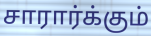
சாரார்க்கும்